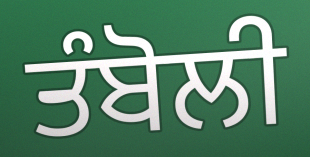
ਤੰਬੋਲੀ